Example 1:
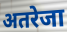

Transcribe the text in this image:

अतरेजा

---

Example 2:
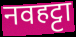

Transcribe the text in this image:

नवहट्टा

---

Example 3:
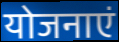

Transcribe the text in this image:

योजनाएं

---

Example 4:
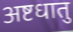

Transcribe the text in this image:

अष्टधातु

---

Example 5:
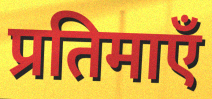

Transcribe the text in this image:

प्रतिमाएँ